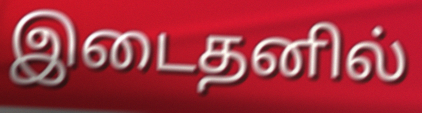
இடைதனில்